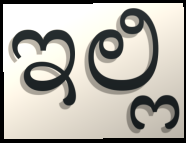
ಇಲ್ಲಿ